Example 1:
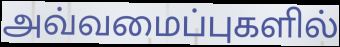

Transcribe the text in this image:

அவ்வமைப்புகளில்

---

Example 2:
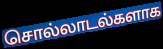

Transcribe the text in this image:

சொல்லாடல்களாக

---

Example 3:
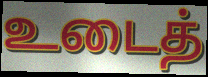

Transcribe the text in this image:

உடைத்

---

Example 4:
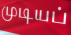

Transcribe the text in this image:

முடியப்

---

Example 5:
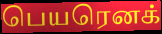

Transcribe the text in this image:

பெயரெனக்